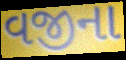
વજીના